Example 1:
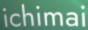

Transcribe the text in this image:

ichimai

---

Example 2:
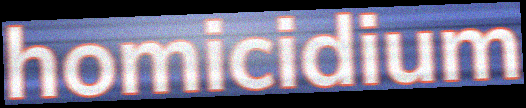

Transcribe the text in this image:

homicidium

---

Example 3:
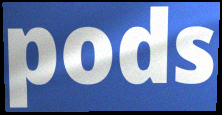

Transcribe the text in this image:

pods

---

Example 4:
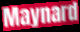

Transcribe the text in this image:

Maynard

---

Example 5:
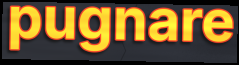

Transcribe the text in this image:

pugnare